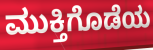
ಮುಕ್ತಿಗೊಡೆಯ